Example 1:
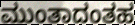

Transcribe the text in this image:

ಮುಂತಾದಂತಹ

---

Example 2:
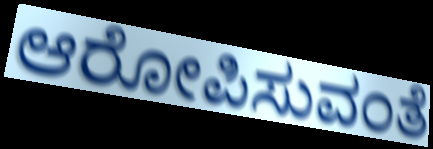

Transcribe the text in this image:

ಆರೋಪಿಸುವಂತೆ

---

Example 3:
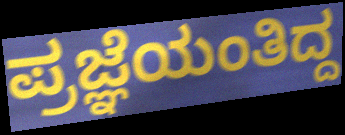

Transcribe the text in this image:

ಪ್ರಜ್ಞೆಯಂತಿದ್ದ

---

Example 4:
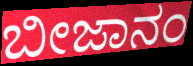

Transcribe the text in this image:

ಬೀಜಾನಂ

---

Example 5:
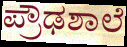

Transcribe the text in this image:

ಪ್ರೌಢಶಾಲೆ